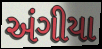
અંગીયા